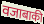
वजाबाकी